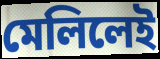
মেলিলেই